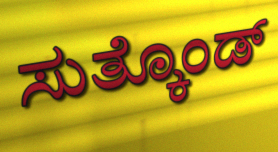
ಸುತ್ಕೊಂಡ್